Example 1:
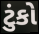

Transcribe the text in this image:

ટુંકો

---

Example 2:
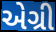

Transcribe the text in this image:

એગ્રી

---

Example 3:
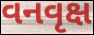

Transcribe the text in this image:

વનવૃક્ષ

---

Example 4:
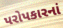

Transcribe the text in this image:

પરોપકારનાં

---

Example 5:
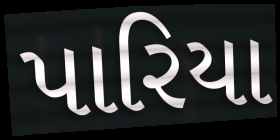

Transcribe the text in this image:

પારિયા